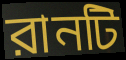
রানটি